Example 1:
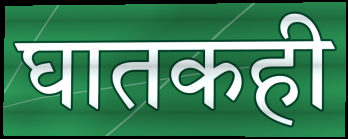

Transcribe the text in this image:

घातकही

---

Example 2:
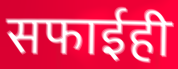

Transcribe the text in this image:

सफाईही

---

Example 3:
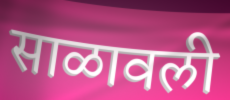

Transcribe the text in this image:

साळावली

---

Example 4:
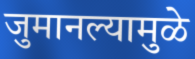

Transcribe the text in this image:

जुमानल्यामुळे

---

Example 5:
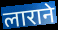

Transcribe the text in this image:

लाराने